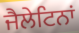
ਜੈਲੇਟਿਨਾਂ